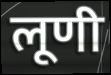
लूणी